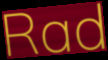
Rad